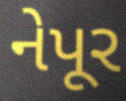
નેપૂર